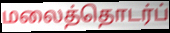
மலைத்தொடர்ப்